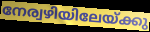
നേര്വഴിയിലേയ്ക്കു